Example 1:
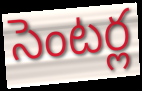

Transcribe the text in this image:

సెంటర్ల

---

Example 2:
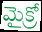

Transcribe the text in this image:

మైక్రో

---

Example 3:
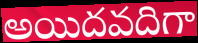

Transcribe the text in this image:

అయిదవదిగా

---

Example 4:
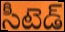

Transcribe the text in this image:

సీటెడ్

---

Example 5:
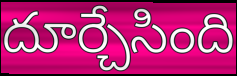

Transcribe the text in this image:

దూర్చేసింది